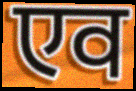
एव